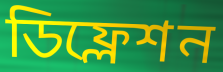
ডিফ্লেশন